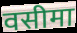
वसीमा